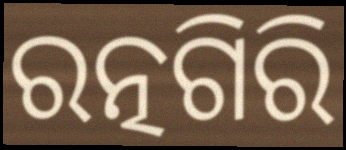
ରତ୍ନଗିରି